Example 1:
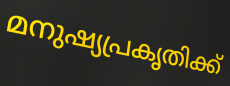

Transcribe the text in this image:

മനുഷ്യപ്രകൃതിക്ക്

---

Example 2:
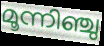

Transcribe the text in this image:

മൂന്നിഞ്ചു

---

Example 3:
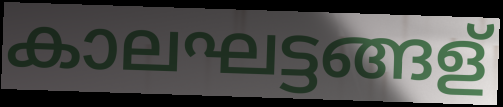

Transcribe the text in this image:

കാലഘട്ടങ്ങള്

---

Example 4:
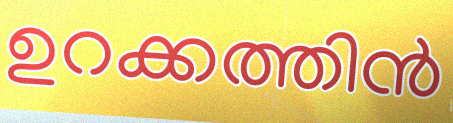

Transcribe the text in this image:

ഉറക്കത്തിൻ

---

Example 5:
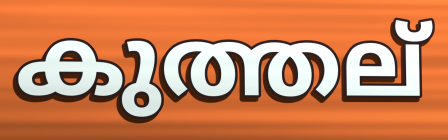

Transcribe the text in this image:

കുത്തല്